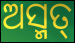
ଅସ୍ମତ୍